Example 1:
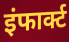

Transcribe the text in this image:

इंफार्क्ट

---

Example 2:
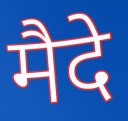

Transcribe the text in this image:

मैदे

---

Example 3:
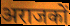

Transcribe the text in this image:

अराजकों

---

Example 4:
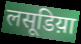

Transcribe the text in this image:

लसूडिय़ा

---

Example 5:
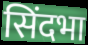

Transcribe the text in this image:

सिंदभा